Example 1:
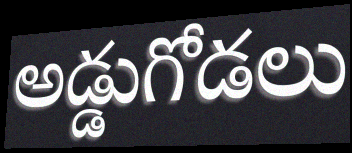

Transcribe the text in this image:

అడ్డుగోడలు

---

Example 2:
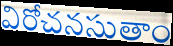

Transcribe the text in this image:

విరోచనసుతాం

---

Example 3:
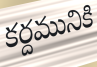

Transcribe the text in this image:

కర్దమునికి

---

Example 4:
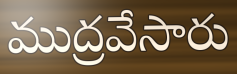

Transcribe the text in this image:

ముద్రవేసారు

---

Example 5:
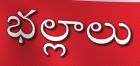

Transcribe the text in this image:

భల్లాలు